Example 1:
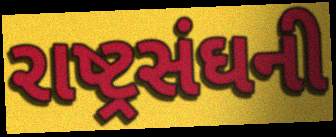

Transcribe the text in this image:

રાષ્ટ્રસંઘની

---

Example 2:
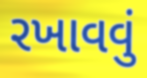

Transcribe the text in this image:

રખાવવું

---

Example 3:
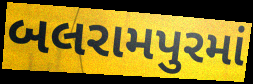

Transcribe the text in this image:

બલરામપુરમાં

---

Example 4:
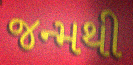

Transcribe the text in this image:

જન્મથી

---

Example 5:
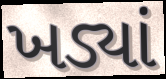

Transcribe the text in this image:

ખડ્યાં